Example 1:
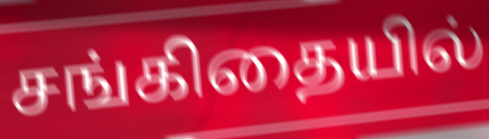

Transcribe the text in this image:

சங்கிதையில்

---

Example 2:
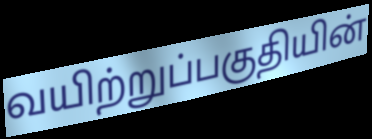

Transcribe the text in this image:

வயிற்றுப்பகுதியின்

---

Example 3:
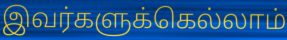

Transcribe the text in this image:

இவர்களுக்கெல்லாம்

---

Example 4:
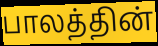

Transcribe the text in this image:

பாலத்தின்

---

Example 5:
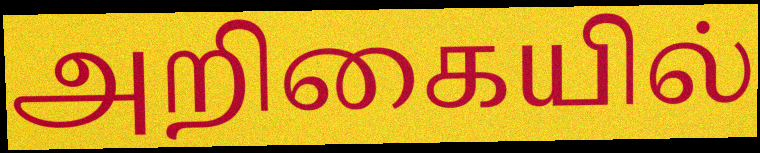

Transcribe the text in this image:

அறிகையில்